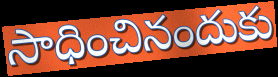
సాధించినందుకు